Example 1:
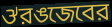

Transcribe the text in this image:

ঔরঙজেবের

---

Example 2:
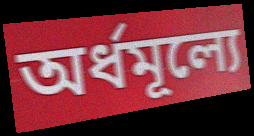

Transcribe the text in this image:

অর্ধমূল্যে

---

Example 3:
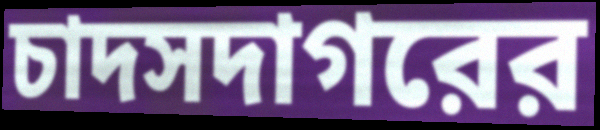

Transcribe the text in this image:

চাদসদাগরের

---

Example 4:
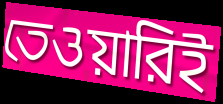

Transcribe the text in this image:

তেওয়ারিই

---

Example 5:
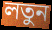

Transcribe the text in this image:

লতুন